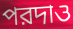
পরদাও